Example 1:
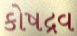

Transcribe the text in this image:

કોષદ્રવ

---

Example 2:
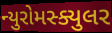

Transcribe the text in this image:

ન્યુરોમસ્ક્યુલર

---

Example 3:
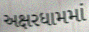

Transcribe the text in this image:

અક્ષરધામમાં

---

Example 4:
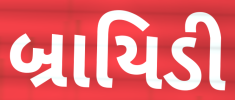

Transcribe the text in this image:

બ્રાયિડી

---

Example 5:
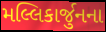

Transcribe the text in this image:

મલ્લિકાર્જુનના